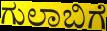
ಗುಲಾಬಿಗೆ